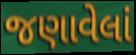
જણાવેલાં